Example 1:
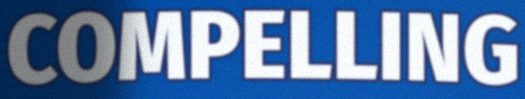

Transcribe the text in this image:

COMPELLING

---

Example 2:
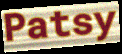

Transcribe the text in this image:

Patsy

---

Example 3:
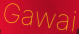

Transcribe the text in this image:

Gawai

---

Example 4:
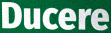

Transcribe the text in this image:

Ducere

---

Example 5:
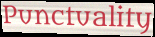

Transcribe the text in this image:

Punctuality